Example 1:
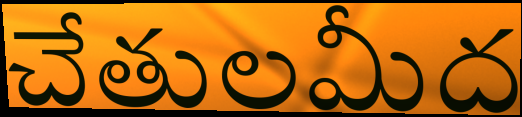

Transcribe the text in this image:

చేతులమీద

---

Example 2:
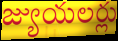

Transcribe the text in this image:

జ్యుయలర్లు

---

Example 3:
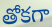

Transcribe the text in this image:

తోకగా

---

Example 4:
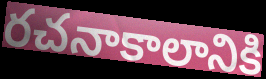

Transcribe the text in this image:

రచనాకాలానికి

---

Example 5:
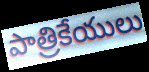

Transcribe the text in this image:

పాత్రికేయులు